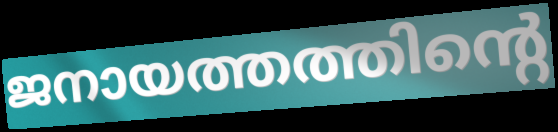
ജനായത്തത്തിന്റെ